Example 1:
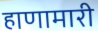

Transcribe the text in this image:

हाणामारी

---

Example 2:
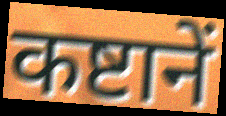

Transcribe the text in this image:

कष्टानें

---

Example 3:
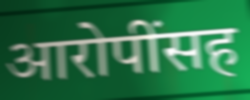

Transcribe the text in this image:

आरोपींसह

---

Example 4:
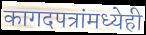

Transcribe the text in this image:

कागदपत्रांमध्येही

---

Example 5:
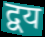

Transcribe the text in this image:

द्वय